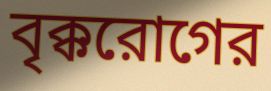
বৃক্করোগের